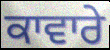
ਕਾਵਾਰੇ